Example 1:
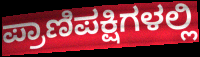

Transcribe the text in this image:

ಪ್ರಾಣಿಪಕ್ಷಿಗಳಲ್ಲಿ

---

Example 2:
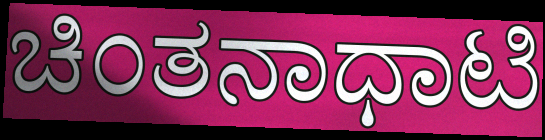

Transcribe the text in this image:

ಚಿಂತನಾಧಾಟಿ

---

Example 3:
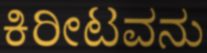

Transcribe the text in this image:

ಕಿರೀಟವನು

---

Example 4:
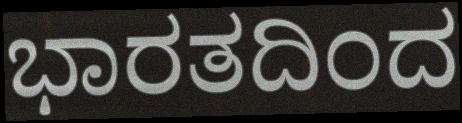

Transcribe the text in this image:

ಭಾರತದಿಂದ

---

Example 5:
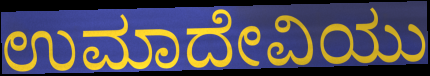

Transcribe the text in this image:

ಉಮಾದೇವಿಯು